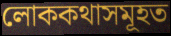
লোককথাসমূহত